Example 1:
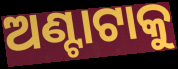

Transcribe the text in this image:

ଅଣ୍ଟାଟାକୁ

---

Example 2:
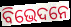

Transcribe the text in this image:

ବିଭେଦନେ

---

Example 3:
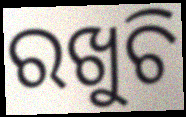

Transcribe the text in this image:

ରଖୁଚି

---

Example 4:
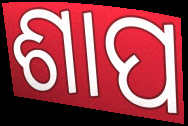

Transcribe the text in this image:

ଶାପ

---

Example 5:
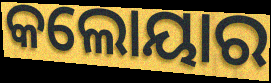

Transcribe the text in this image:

କଲୋୟାର